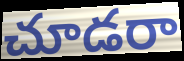
చూడరా